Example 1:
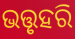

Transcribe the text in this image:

ଭତ୍ତୃହରି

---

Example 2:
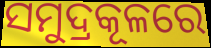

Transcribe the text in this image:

ସମୁଦ୍ରକୂଳରେ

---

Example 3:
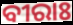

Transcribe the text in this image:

ବୀରାଃ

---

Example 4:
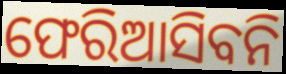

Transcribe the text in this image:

ଫେରିଆସିବନି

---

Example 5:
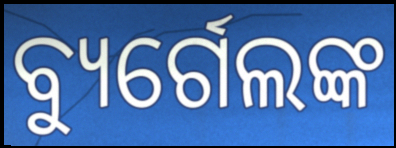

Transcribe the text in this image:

ବ୍ୟୁର୍ଗେଲଙ୍କ